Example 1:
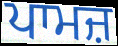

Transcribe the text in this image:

ਪਾਮਜ਼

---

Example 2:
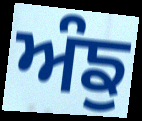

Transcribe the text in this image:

ਅੰਙੁ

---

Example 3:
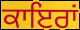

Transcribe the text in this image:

ਕਾਇਰਾਂ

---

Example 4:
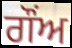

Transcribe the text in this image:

ਗੌਂਅ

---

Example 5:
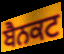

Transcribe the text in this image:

ਬੈਨਕਟ